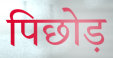
पिछोड़